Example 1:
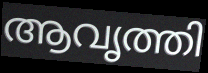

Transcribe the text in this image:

ആവൃത്തി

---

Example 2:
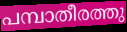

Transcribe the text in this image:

പമ്പാതീരത്തു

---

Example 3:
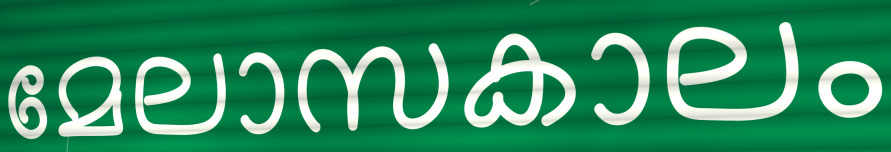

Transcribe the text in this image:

മേലാസകാലം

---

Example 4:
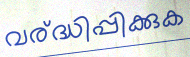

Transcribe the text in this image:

വര്ദ്ധിപ്പിക്കുക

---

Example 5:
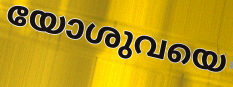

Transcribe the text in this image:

യോശുവയെ